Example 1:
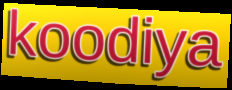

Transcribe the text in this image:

koodiya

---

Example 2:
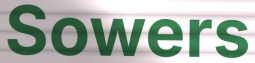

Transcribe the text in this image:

Sowers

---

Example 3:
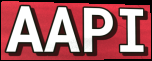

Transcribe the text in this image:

AAPI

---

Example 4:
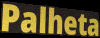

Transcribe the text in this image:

Palheta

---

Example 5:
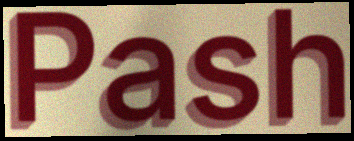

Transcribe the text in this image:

Pash